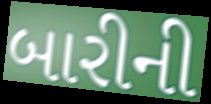
બારીની